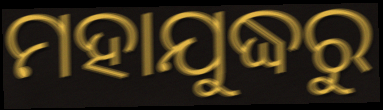
ମହାଯୁଦ୍ଧରୁ